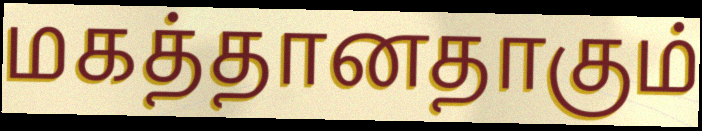
மகத்தானதாகும்